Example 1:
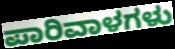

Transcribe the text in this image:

ಪಾರಿವಾಳಗಳು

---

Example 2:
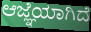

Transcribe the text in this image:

ಆಜ್ಞೆಯಾಗಿದೆ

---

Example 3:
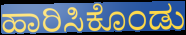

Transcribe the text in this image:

ಹಾರಿಸಿಕೊಂಡು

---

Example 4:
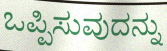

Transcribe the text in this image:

ಒಪ್ಪಿಸುವುದನ್ನು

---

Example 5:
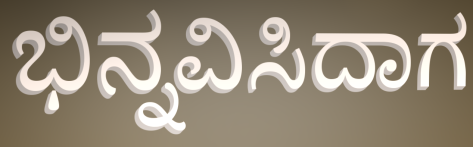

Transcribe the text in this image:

ಭಿನ್ನವಿಸಿದಾಗ